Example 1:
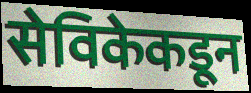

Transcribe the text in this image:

सेविकेकडून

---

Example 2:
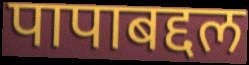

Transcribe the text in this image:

पापाबद्दल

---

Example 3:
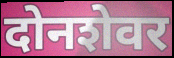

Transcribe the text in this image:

दोनशेवर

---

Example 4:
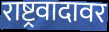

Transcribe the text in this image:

राष्ट्रवादावर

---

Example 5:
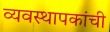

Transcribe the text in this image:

व्यवस्थापकांची